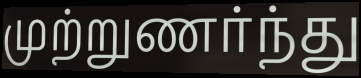
முற்றுணர்ந்து